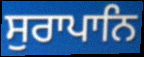
ਸੁਰਾਪਾਨਿ